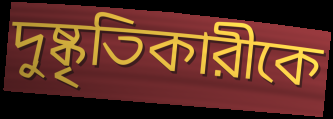
দুষ্কৃতিকারীকে